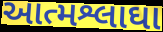
આત્મશ્લાઘા